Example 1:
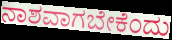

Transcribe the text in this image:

ನಾಶವಾಗಬೇಕೆಂದು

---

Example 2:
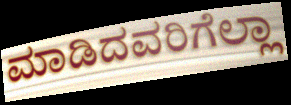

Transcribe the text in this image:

ಮಾಡಿದವರಿಗೆಲ್ಲಾ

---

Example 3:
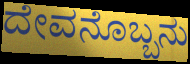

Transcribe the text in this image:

ದೇವನೊಬ್ಬನು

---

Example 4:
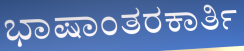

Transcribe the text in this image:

ಭಾಷಾಂತರಕಾರ್ತಿ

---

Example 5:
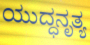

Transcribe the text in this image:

ಯುದ್ಧನೃತ್ಯ